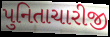
પુનિતાચારીજી